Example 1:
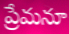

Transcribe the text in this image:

ప్రేమనూ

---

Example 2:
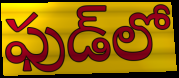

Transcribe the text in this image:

ఫుడ్‌లో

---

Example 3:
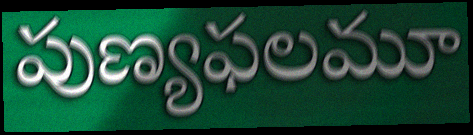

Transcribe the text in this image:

పుణ్యఫలమూ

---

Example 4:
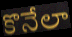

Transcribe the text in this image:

కొనేలా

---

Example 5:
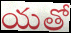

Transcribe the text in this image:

యతో